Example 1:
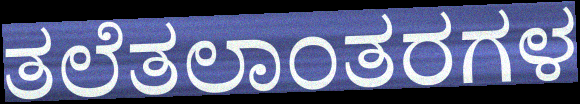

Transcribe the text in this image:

ತಲೆತಲಾಂತರಗಳ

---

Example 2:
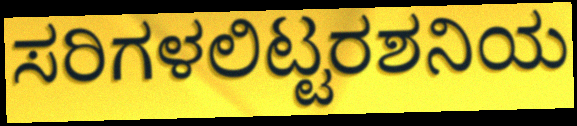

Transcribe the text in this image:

ಸರಿಗಳಲಿಟ್ಟರಶನಿಯ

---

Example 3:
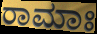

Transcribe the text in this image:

ರಾಮಾಃ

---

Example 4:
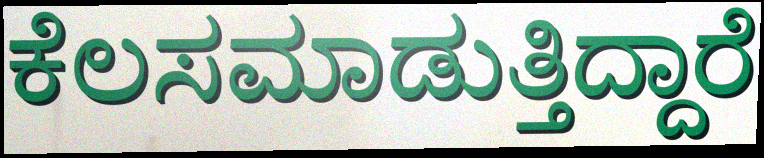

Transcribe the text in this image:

ಕೆಲಸಮಾಡುತ್ತಿದ್ದಾರೆ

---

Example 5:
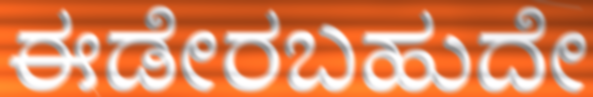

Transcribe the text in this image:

ಈಡೇರಬಹುದೇ